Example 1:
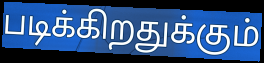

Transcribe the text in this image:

படிக்கிறதுக்கும்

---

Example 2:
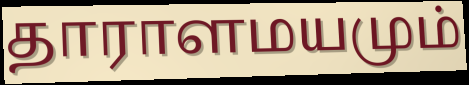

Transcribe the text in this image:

தாராளமயமும்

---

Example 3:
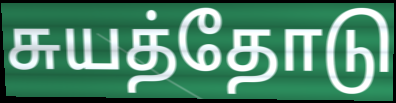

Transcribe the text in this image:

சுயத்தோடு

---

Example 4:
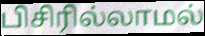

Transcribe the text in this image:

பிசிரில்லாமல்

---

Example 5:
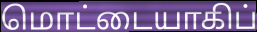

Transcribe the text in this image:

மொட்டையாகிப்